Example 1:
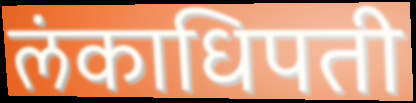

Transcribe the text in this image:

लंकाधिपती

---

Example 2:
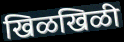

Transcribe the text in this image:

खिळखिळी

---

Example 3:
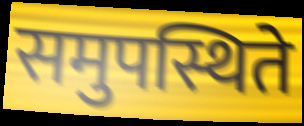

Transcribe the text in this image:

समुपस्थिते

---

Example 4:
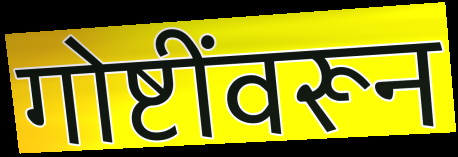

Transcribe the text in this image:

गोष्टींवरून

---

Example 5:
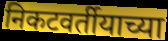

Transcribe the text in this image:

निकटवर्तीयाच्या